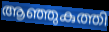
ആഞ്ഞുകുത്തി